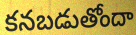
కనబడుతోందా